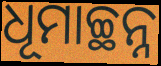
ଧୂମାଚ୍ଛନ୍ନ